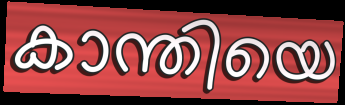
കാന്തിയെ